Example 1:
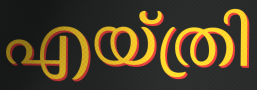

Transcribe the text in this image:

എയ്ത്രി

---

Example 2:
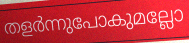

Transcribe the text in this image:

തളർന്നുപോകുമല്ലോ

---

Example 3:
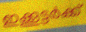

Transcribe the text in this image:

ഇക്കൂട്ടർക്ക്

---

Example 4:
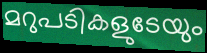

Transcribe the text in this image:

മറുപടികളുടേയും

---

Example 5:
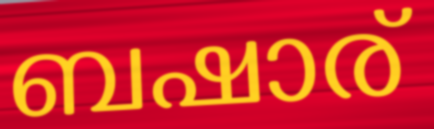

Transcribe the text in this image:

ബഷാര്